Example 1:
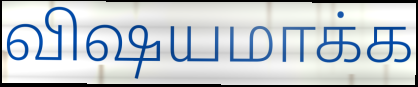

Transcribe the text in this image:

விஷயமாக்க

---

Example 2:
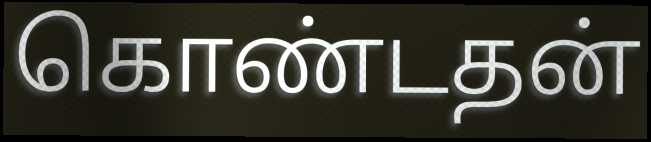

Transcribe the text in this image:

கொண்டதன்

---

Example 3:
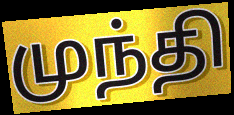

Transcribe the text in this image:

முந்தி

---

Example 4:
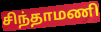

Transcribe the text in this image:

சிந்தாமணி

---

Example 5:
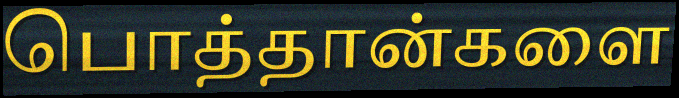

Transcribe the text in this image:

பொத்தான்களை